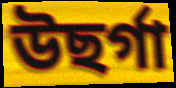
উছৰ্গা